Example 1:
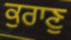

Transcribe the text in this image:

ਕੁਰਾਣੁ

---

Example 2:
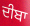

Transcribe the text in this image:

ਦੀਬਾ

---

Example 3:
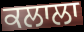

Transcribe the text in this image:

ਕਲਾਲਾ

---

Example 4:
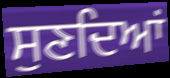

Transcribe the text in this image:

ਸੁਣਦਿਆਂ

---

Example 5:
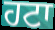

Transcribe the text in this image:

ਹਟਾ